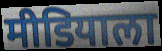
मीडियाला